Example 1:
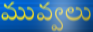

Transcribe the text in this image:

మువ్వలు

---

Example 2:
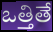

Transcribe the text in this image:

ఒత్తితే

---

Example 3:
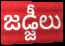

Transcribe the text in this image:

జడ్జీలు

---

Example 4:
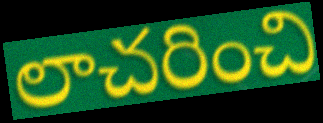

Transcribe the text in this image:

లాచరించి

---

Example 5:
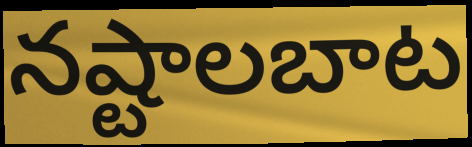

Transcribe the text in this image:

నష్టాలబాట